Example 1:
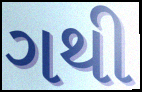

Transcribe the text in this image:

ગથી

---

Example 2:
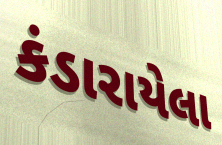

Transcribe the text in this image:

કંડારાયેલા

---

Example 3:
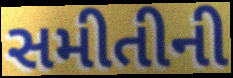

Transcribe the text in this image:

સમીતીની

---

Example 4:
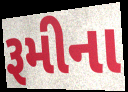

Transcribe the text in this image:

રૂમીના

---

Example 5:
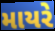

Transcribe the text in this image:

માયરે